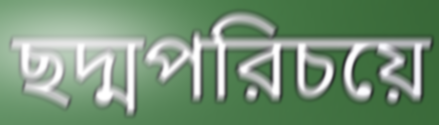
ছদ্মপরিচয়ে